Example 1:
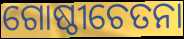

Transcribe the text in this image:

ଗୋଷ୍ଠୀଚେତନା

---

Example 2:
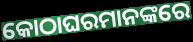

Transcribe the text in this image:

କୋଠାଘରମାନଙ୍କରେ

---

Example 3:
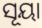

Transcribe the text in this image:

ସୂୟା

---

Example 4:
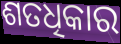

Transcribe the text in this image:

ଶତଧିକାର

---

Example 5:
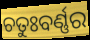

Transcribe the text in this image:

ଚତୁଃବର୍ଣ୍ଣର